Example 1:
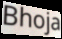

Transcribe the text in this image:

Bhoja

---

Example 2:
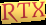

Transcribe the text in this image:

RTX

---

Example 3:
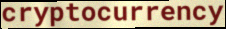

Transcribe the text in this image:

cryptocurrency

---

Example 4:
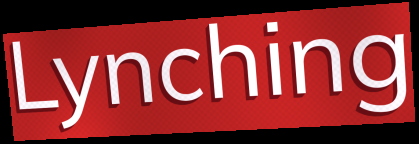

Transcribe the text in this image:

Lynching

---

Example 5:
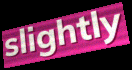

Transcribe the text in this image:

slightly